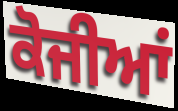
ਕੋਜੀਆਂ